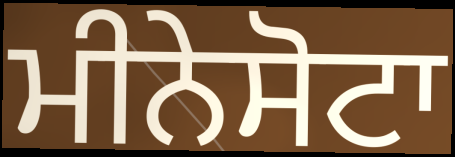
ਮੀਨੇਸੋਟਾ